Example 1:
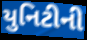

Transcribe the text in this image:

યુનિટીની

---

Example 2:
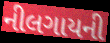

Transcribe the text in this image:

નીલગાયની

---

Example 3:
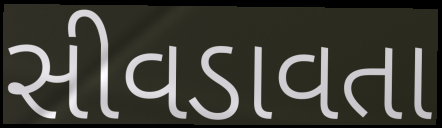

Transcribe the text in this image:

સીવડાવતા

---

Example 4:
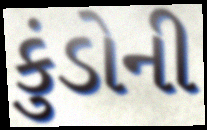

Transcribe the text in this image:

કુંડોની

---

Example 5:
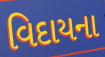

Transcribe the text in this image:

વિદાયના